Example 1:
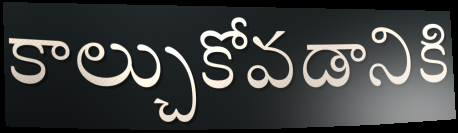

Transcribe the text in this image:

కాల్చుకోవడానికి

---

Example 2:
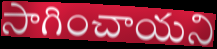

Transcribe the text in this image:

సాగించాయని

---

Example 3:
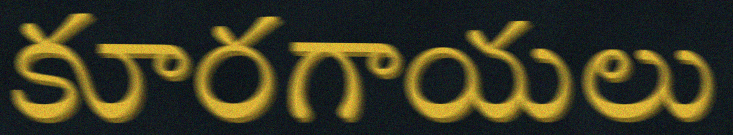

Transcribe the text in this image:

కూరగాయలు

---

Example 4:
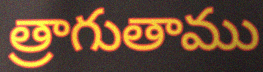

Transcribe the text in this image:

త్రాగుతాము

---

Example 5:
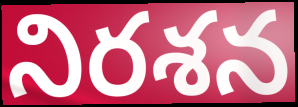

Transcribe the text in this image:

నిరశన